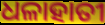
ଧଳାହାତୀ